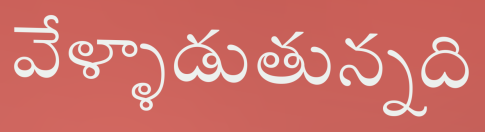
వేళ్ళాడుతున్నది